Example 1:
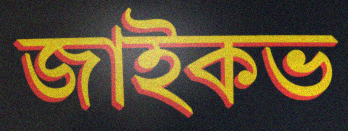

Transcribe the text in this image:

জাইকভ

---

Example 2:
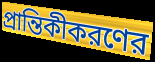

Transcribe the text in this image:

প্রান্তিকীকরণের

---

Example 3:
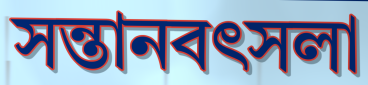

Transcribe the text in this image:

সন্তানবৎসলা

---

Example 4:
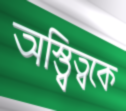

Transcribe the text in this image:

অস্ত্বিত্বকে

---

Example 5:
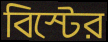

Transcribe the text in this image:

বিস্টের